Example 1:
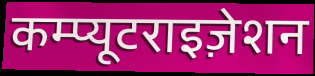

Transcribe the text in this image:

कम्प्यूटराइज़ेशन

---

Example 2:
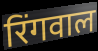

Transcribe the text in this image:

रिंगवाल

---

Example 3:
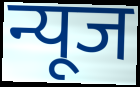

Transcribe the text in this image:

न्‍यूज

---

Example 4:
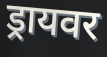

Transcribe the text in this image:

ड्रायवर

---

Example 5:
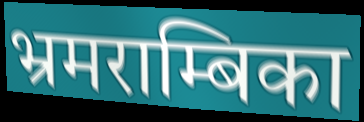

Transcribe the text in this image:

भ्रमराम्बिका